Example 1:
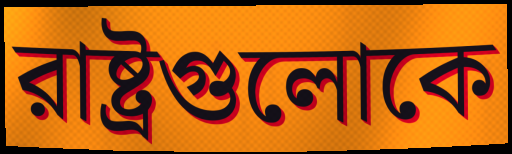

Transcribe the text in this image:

রাষ্ট্রগুলোকে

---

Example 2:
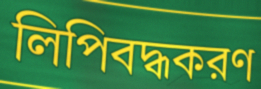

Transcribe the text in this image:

লিপিবদ্ধকরণ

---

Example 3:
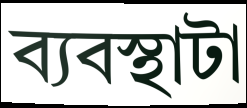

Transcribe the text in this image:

ব্যবস্থাটা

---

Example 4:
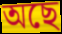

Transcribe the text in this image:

অছে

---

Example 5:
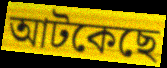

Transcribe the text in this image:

আটকেছে